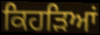
ਕਿਹੜਿਆਂ